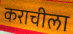
कराचीला